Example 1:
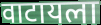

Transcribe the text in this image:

वाटायला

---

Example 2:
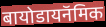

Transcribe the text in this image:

बायोडायनॅमिक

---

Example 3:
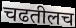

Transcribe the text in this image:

चढतीलच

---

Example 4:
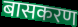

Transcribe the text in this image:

बासकरण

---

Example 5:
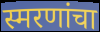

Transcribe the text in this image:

स्मरणांचा